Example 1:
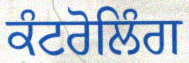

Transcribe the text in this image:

ਕੰਟਰੋਲਿੰਗ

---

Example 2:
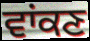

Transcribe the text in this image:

ਵਾਂਕਣ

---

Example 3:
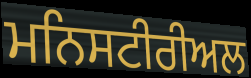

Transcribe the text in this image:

ਮਨਿਸਟੀਰੀਅਲ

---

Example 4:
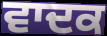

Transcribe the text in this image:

ਵਾਦਕ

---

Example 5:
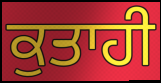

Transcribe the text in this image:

ਕੁਤਾਹੀ